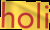
holi